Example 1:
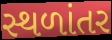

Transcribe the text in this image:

સ્થળાંતર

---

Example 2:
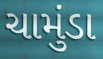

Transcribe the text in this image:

ચામુંડા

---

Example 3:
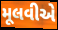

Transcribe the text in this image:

મૂલવીએ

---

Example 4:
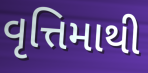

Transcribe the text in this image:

વૃત્તિમાથી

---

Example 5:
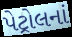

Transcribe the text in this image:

પેટ્રોલનાં